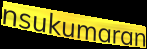
nsukumaran